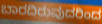
ಬಾರದಿರುವುದರಿಂದ